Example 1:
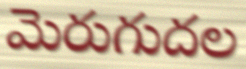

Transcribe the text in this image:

మెరుగుదల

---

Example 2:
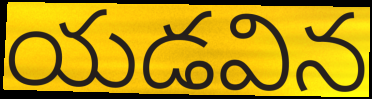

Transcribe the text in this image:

యడవిన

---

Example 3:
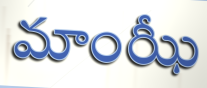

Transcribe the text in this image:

మాంఝీ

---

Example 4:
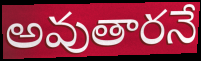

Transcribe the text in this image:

అవుతారనే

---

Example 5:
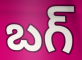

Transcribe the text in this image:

బగ్